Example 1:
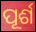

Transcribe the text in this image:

ପୂର୍ଶ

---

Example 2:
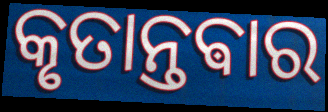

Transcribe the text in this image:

କୃତାନ୍ତଵାର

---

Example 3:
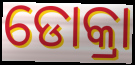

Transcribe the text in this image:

ଡୋକ୍ରା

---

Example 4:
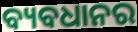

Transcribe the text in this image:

ବ୍ୟବଧାନର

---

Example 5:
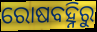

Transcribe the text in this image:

ରୋଷବହ୍ନିରୁ